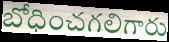
బోధించగలిగారు